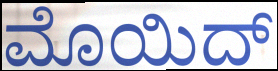
ಮೊಯಿದ್